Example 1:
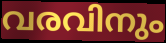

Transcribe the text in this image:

വരവിനും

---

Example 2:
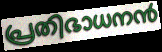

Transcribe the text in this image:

പ്രതിഭാധനൻ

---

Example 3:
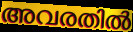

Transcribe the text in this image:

അവരതിൽ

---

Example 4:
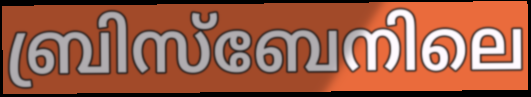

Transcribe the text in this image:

ബ്രിസ്ബേനിലെ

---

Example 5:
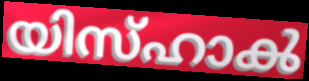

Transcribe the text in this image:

യിസ്ഹാൿ